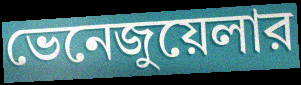
ভেনেজুয়েলার